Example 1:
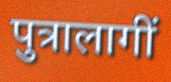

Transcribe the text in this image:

पुत्रालागीं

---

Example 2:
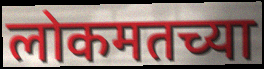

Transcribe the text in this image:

लोकमतच्या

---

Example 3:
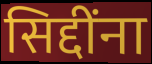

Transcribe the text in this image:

सिद्दींना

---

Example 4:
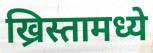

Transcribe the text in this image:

ख्रिस्तामध्ये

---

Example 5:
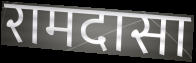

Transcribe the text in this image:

रामदासा